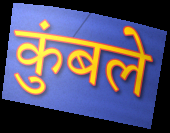
कुंबले